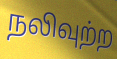
நலிவுற்ற